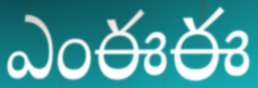
ఎంఈఈ